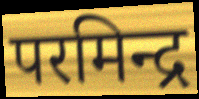
परमिन्द्र